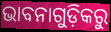
ଭାବନାଗୁଡ଼ିକରୁ